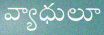
వ్యాధులూ